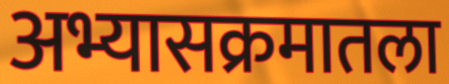
अभ्यासक्रमातला